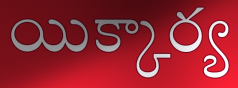
యిక్కార్య